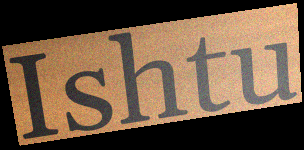
Ishtu